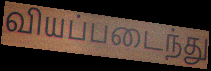
வியப்படைந்து